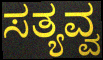
ಸತ್ಯವ್ವ